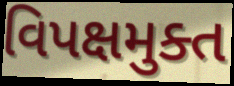
વિપક્ષમુક્ત